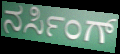
ನರ್ಸಿಂಗ್